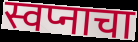
स्वप्नाचा